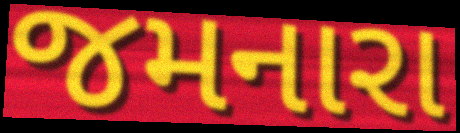
જમનારા